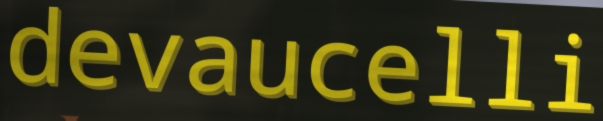
devaucelli